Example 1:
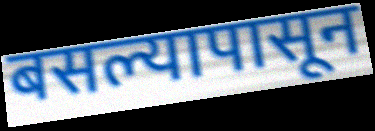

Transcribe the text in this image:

बसल्यापासून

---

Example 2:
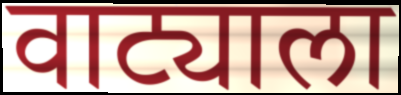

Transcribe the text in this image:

वाट्याला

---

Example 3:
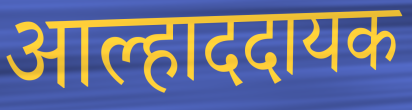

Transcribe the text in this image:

आल्हाददायक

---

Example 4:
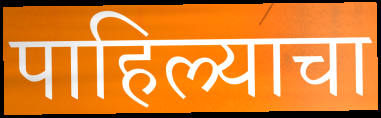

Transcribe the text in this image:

पाहिल्याचा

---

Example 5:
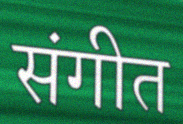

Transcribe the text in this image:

संगीत